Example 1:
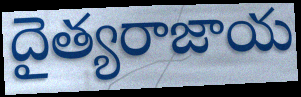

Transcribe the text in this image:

దైత్యరాజాయ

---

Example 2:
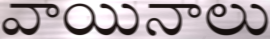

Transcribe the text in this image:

వాయినాలు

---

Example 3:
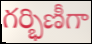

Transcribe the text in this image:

గర్భిణీగా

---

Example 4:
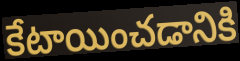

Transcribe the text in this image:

కేటాయించడానికి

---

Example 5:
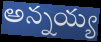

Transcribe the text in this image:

అన్నయ్య